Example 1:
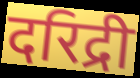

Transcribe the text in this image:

दरिद्री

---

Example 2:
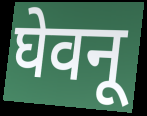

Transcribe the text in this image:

घेवनू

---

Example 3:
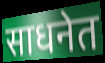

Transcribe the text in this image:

साधनेत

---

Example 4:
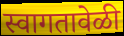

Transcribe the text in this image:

स्वागतावेळी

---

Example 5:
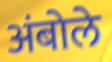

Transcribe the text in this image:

अंबोले